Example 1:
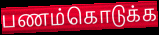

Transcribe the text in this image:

பணம்கொடுக்க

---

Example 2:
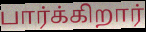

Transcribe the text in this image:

பார்க்கிறார்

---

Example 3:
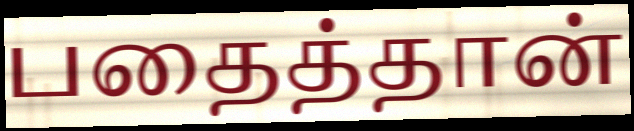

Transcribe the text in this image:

பதைத்தான்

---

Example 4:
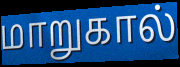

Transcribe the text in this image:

மாறுகால்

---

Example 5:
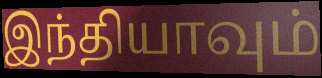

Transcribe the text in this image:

இந்தியாவும்